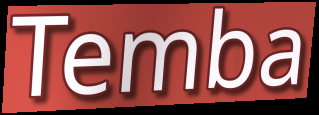
Temba